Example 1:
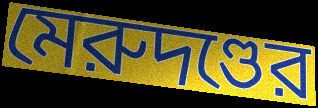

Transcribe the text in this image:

মেরুদণ্ডের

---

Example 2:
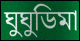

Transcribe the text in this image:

ঘুঘুডিমা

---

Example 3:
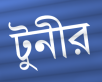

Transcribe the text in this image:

টুনীর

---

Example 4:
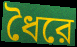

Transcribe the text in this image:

ধৈরে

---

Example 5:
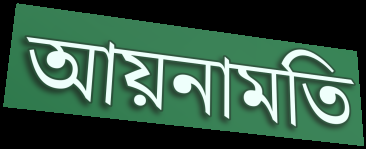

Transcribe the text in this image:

আয়নামতি